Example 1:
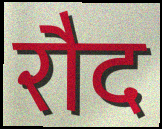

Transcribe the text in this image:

रौद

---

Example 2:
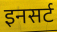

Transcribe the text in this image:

इनसर्ट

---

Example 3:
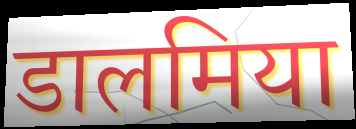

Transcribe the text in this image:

डालमिया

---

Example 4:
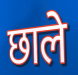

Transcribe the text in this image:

छाले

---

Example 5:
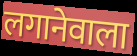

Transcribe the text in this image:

लगानेवाला